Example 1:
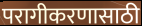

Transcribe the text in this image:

परागीकरणासाठी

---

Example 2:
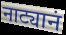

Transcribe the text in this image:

नाट्यानं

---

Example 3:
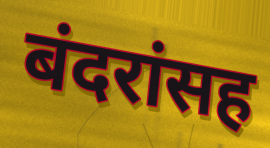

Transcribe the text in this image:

बंदरांसह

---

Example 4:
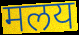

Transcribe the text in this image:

मलय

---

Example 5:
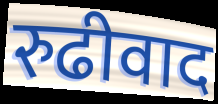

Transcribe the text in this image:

रुढीवाद